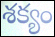
శక్యం